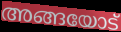
അങ്ങയോട്